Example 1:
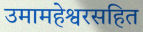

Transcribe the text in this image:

उमामहेश्वरसहित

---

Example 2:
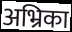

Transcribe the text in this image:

अभ्रिका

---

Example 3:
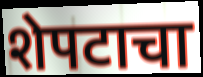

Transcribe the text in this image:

शेपटाचा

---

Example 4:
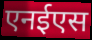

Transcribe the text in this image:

एनईएस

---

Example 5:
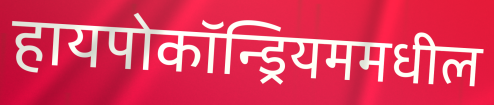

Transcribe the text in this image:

हायपोकॉन्ड्रियममधील